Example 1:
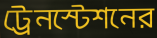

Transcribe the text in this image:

ট্রেনস্টেশনের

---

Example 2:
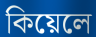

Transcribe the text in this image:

কিয়েলে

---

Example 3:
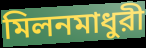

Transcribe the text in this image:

মিলনমাধুরী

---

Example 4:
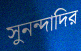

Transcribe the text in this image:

সুনন্দাদির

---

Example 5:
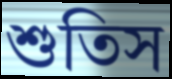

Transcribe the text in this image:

শুতিস